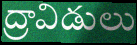
ద్రావిడులు